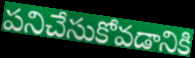
పనిచేసుకోవడానికి